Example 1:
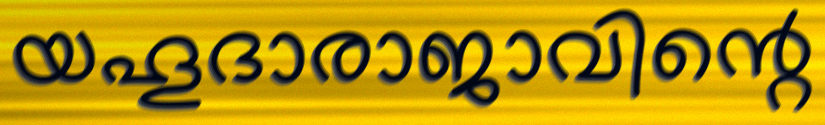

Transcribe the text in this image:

യഹൂദാരാജാവിന്റെ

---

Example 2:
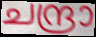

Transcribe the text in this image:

ചന്ദ്രാ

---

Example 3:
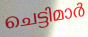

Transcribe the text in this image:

ചെട്ടിമാർ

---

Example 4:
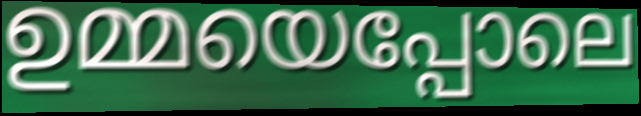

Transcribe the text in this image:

ഉമ്മയെപ്പോലെ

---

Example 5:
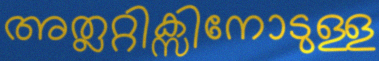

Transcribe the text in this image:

അത്ലറ്റിക്സിനോടുള്ള